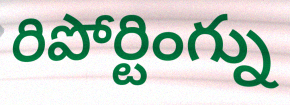
రిపోర్టింగ్ను